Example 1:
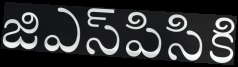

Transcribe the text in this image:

జిఎస్‌పిసికి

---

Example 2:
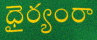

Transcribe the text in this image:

ధైర్యంరా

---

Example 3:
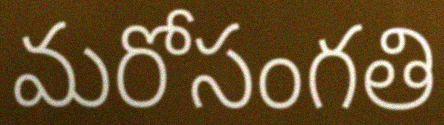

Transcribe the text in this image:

మరోసంగతి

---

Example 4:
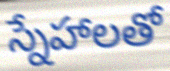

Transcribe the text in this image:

స్నేహాలతో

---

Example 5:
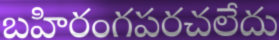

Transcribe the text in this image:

బహిరంగపరచలేదు